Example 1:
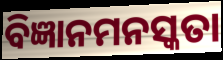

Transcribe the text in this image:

ବିଜ୍ଞାନମନସ୍କତା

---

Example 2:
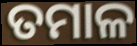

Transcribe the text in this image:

ତମାଳ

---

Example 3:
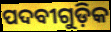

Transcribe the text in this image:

ପଦବୀଗୁଡ଼ିକ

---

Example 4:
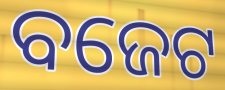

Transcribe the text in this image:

ବଜେଟ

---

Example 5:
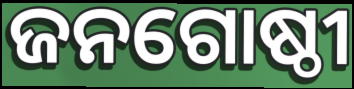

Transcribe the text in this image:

ଜନଗୋଷ୍ଠୀ